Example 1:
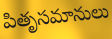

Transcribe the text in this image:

పితృసమానులు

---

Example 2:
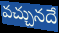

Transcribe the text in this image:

వచ్చునదే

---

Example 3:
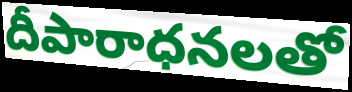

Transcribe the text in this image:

దీపారాధనలతో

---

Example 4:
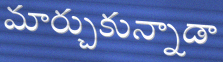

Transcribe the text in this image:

మార్చుకున్నాడా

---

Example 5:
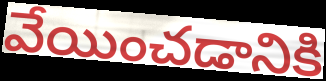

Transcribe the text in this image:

వేయించడానికి